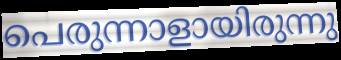
പെരുന്നാളായിരുന്നു